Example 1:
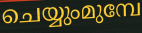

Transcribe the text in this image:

ചെയ്യുംമുമ്പേ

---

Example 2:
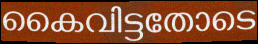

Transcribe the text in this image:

കൈവിട്ടതോടെ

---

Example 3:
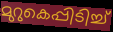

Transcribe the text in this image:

മുറുകെപ്പിടിച്ച്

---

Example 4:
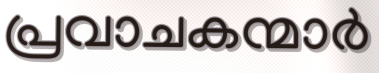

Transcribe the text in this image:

പ്രവാചകന്മാർ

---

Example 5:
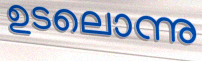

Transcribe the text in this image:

ഉടലൊന്നു